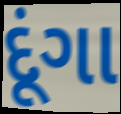
દૂંગા